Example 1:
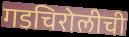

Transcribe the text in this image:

गडचिरोलीची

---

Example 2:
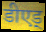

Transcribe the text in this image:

डीएड्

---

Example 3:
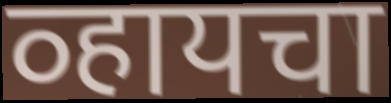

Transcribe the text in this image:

व्हायचा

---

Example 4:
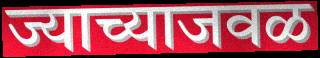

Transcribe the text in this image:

ज्याच्याजवळ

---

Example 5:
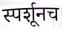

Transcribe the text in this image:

स्पर्शूनच